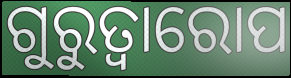
ଗୁରୁତ୍ବାରୋପ